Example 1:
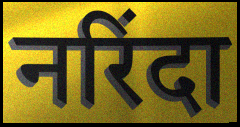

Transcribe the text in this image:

नरिंदा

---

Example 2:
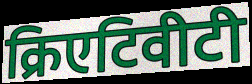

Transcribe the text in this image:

क्रिएटिवीटी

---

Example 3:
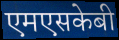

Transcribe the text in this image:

एमएसकेबी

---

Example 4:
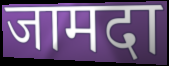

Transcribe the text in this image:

जामदा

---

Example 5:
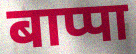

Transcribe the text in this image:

बाप्पा